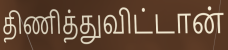
திணித்துவிட்டான்